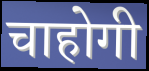
चाहोगी